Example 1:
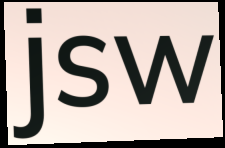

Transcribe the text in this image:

jsw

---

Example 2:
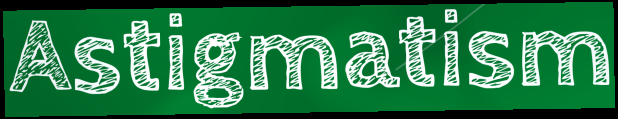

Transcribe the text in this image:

Astigmatism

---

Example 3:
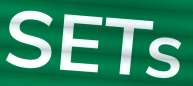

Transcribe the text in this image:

SETs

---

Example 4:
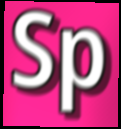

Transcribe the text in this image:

Sp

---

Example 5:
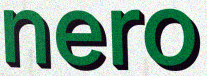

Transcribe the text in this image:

nero